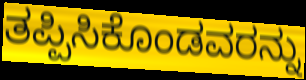
ತಪ್ಪಿಸಿಕೊಂಡವರನ್ನು